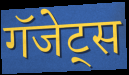
गॅजेट्स